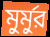
মুর্মুর